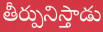
తీర్పునిస్తాడు